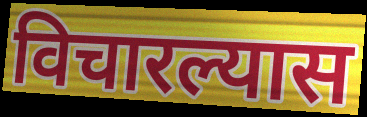
विचारल्यास